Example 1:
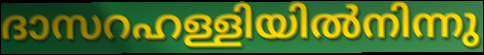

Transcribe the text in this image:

ദാസറഹള്ളിയിൽനിന്നു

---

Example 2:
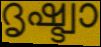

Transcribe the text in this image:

ദൃഷ്ട്വാ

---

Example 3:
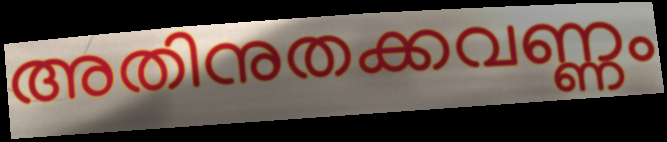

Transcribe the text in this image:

അതിനുതക്കവണ്ണം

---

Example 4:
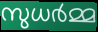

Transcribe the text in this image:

സുധർമ്മ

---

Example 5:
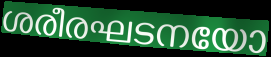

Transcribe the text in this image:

ശരീരഘടനയോ